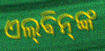
ଏଲ୍‌ଵିନ୍‌ଙ୍କ